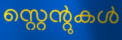
സ്റ്റെന്റുകൾ